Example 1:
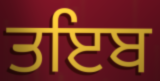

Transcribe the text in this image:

ਤਇਬ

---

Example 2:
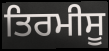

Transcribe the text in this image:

ਤਿਰਮੀਸੂ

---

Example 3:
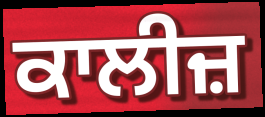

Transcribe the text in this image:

ਕਾਲੀਜ਼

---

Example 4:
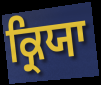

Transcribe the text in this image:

ਕ੍ਰਿਯਾ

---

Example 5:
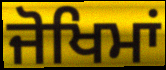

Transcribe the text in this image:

ਜੋਖਿਮਾਂ